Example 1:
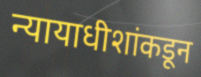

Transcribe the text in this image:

न्यायाधीशांकडून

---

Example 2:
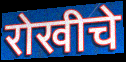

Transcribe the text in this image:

रोखीचे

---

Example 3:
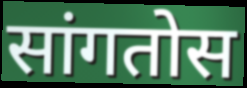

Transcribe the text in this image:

सांगतोस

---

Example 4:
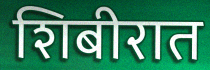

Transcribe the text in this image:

शिबीरात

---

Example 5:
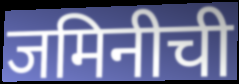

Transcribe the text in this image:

जमिनीची